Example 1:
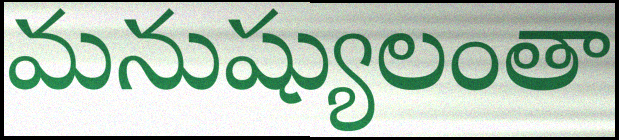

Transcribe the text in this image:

మనుష్యులంతా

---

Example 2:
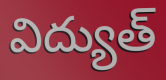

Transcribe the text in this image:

విద్యుత్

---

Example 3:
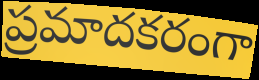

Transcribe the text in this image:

ప్రమాదకరంగా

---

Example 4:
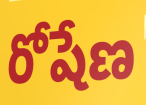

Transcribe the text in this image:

రోషేణ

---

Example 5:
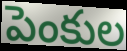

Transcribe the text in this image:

పెంకుల